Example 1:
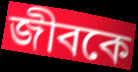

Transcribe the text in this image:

জীবকে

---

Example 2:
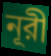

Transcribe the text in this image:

নূরী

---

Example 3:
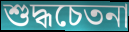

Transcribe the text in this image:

শুদ্ধচেতনা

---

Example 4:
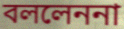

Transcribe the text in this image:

বললেননা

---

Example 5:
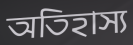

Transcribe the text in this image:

অতিহাস্য